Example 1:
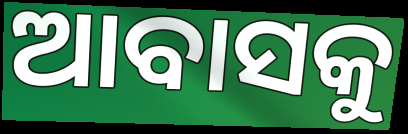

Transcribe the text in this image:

ଆବାସକୁ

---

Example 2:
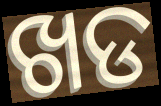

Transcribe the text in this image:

ଖଡ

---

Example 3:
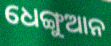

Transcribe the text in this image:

ଧେଙ୍ଗୁଆନ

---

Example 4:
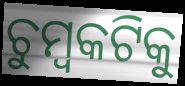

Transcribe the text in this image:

ଚୁମ୍ବକଟିକୁ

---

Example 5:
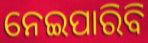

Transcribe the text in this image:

ନେଇପାରିବି